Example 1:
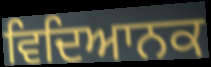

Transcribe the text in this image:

ਵਿਦਿਆਨਕ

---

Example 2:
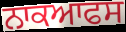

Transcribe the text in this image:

ਨਾਕਆਫਸ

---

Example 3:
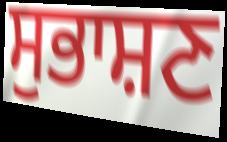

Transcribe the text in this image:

ਸੁਭਾਸ਼ਣ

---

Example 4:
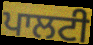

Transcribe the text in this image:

ਪਾਲਟੀ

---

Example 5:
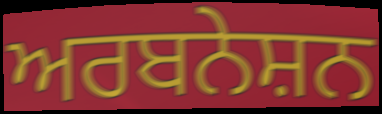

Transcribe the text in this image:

ਅਰਬਨੇਸ਼ਨ